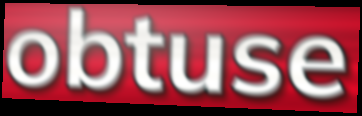
obtuse